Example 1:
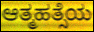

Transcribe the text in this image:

ಆತ್ಮಹತ್ಸೆಯ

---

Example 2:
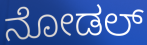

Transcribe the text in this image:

ನೋಡಲ್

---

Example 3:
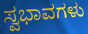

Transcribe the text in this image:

ಸ್ವಭಾವಗಳು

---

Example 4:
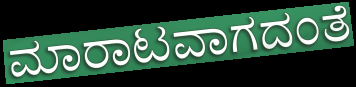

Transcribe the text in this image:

ಮಾರಾಟವಾಗದಂತೆ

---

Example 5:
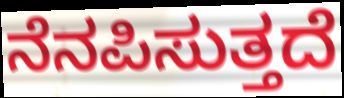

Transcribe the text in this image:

ನೆನಪಿಸುತ್ತದೆ